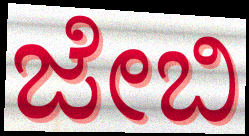
ಜೇಬಿ